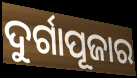
ଦୁର୍ଗାପୂଜାର